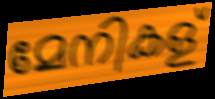
മേനികള്